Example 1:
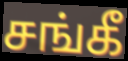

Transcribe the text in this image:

சங்கீ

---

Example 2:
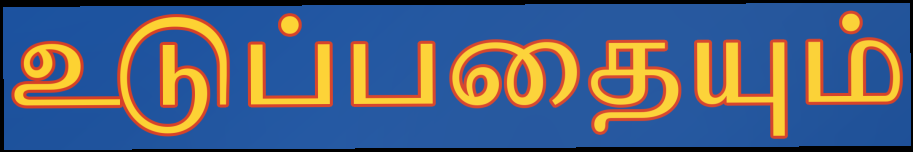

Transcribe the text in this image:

உடுப்பதையும்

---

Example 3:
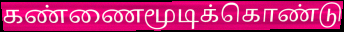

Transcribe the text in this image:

கண்ணைமூடிக்கொண்டு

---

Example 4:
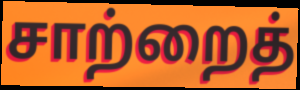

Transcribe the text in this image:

சாற்றைத்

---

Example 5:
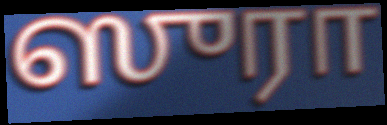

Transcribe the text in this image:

ஸுரா